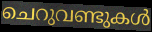
ചെറുവണ്ടുകൾ